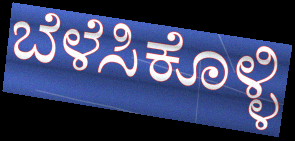
ಬೆಳೆಸಿಕೊಳ್ಳಿ